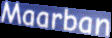
Maarban